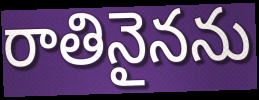
రాతినైనను